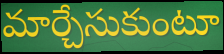
మార్చేసుకుంటూ